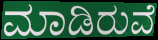
ಮಾಡಿರುವೆ